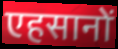
एहसानों